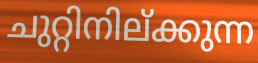
ചുറ്റിനില്ക്കുന്ന